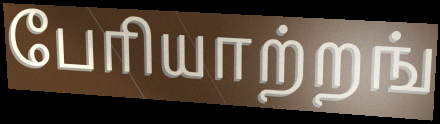
பேரியாற்றங்